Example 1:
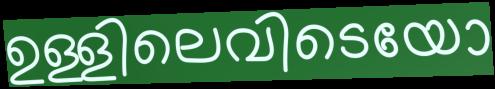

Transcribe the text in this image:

ഉള്ളിലെവിടെയോ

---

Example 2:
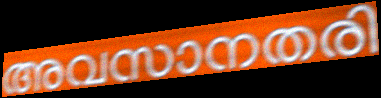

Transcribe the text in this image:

അവസാനതരി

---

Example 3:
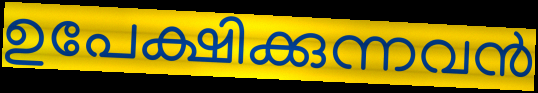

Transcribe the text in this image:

ഉപേക്ഷിക്കുന്നവൻ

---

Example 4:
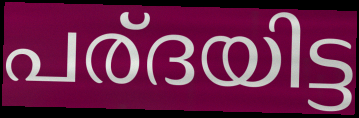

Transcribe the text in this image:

പര്ദയിട്ട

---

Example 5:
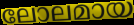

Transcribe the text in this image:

ലോലമായ